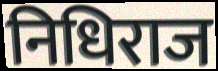
निधिराज